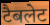
टैबलेट